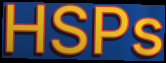
HSPs